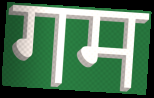
गम